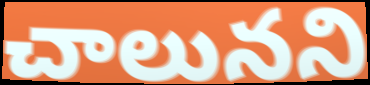
చాలునని